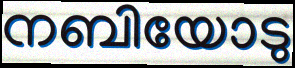
നബിയോടു